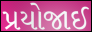
પ્રયોજાઈ